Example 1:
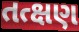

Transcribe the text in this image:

તત્ક્ષણ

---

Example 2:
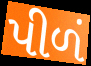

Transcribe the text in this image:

પીળં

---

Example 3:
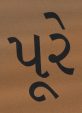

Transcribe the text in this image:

પૂરે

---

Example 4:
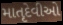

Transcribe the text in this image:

માતૃદેવીઓ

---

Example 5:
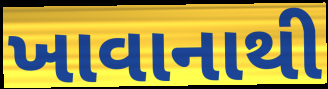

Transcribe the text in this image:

ખાવાનાથી